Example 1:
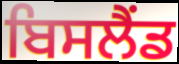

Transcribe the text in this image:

ਬਿਸਲੈਂਡ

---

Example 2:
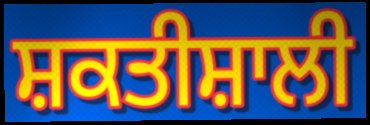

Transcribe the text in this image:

ਸ਼ਕਤੀਸ਼ਾਲੀ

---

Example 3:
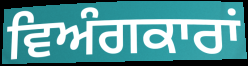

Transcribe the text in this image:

ਵਿਅੰਗਕਾਰਾਂ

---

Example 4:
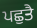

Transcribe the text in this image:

ਪਛੁਤੈ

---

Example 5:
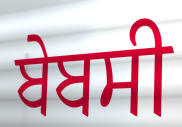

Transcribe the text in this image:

ਬੇਬਸੀ